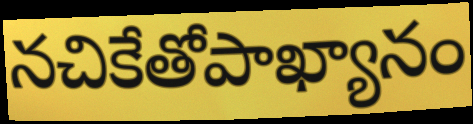
నచికేతోపాఖ్యానం